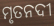
ମୃତନଦୀ